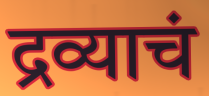
द्रव्याचं